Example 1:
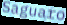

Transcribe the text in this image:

Saguaro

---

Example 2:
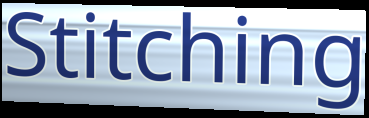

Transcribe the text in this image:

Stitching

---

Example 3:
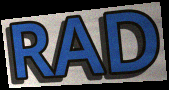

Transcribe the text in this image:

RAD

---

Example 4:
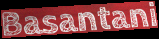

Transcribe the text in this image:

Basantani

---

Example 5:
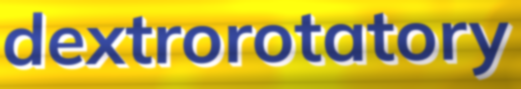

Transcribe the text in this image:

dextrorotatory